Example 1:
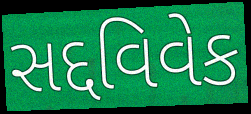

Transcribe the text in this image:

સદ્દવિવેક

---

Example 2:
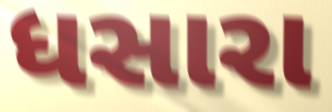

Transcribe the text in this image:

ધસારા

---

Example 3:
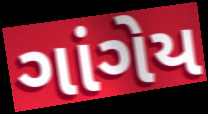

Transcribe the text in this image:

ગાંગેય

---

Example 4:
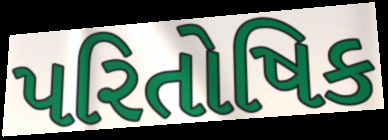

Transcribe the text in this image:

પરિતોષિક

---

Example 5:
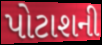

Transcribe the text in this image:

પોટાશની